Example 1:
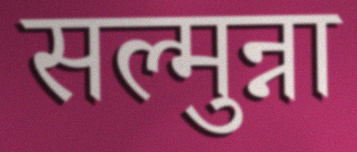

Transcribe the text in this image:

सल्मुन्ना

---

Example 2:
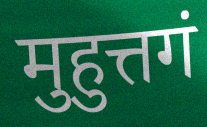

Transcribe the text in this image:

मुहुत्तगं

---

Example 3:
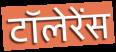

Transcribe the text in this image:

टॉलेरेंस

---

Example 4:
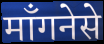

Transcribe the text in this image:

माँगनेसे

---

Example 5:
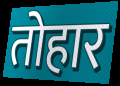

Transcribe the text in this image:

तोहार